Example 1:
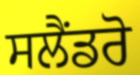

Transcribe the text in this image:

ਸਲੈਂਡਰੋ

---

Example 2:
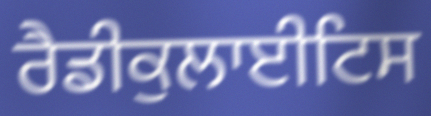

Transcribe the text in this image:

ਰੈਡੀਕੁਲਾਈਟਿਸ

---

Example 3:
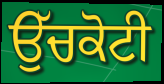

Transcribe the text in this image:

ਉੱਚਕੋਟੀ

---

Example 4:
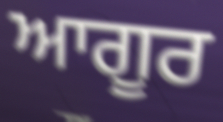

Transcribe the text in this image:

ਆਗੂਰ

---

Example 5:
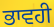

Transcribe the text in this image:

ਭਾਵਹੀ